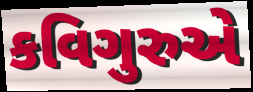
કવિગુરુએ